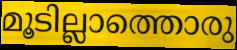
മൂടില്ലാത്തൊരു